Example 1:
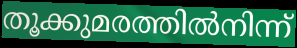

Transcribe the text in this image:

തൂക്കുമരത്തിൽനിന്ന്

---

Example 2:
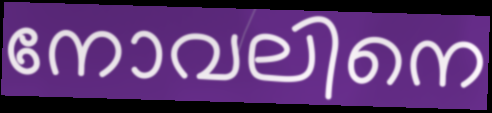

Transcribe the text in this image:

നോവലിനെ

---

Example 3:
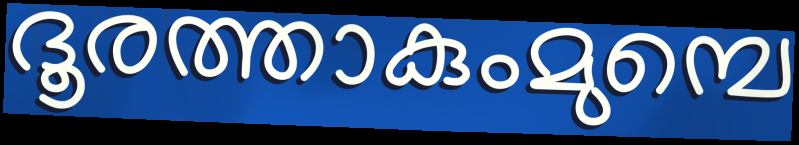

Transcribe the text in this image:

ദൂരത്താകുംമുമ്പെ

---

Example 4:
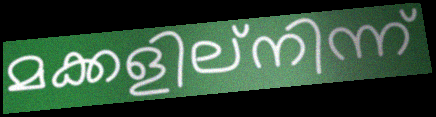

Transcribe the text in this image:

മക്കളില്നിന്ന്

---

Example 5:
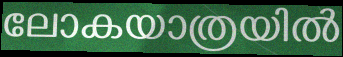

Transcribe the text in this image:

ലോകയാത്രയിൽ